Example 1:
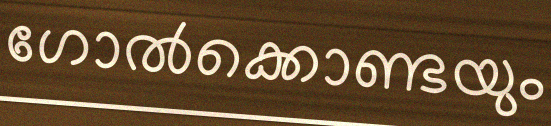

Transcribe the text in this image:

ഗോൽക്കൊണ്ടയും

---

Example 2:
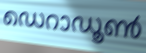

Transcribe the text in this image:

ഡെറാഡൂൺ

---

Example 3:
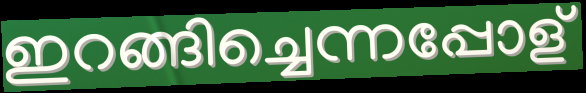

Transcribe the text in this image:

ഇറങ്ങിച്ചെന്നപ്പോള്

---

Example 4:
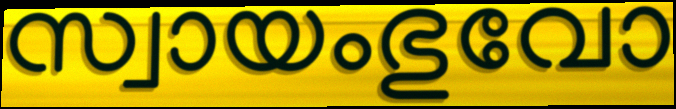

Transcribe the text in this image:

സ്വായംഭുവോ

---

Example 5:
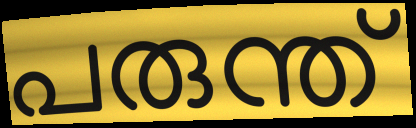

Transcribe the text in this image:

പരുന്ത്